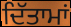
ਦਿੱਤਾਮਾਂ